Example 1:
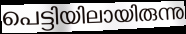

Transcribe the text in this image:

പെട്ടിയിലായിരുന്നു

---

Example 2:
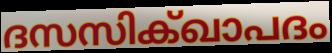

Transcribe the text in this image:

ദസസിക്ഖാപദം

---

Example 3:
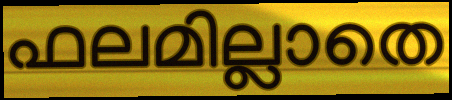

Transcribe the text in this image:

ഫലമില്ലാതെ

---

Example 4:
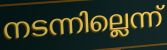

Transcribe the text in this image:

നടന്നില്ലെന്ന്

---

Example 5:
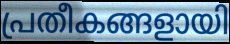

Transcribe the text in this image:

പ്രതീകങ്ങളായി